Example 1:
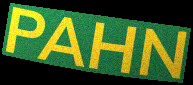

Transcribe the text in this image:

PAHN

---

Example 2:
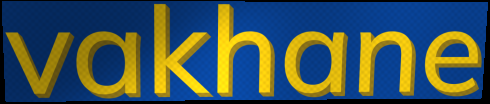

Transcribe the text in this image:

vakhane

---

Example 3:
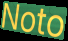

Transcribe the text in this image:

Noto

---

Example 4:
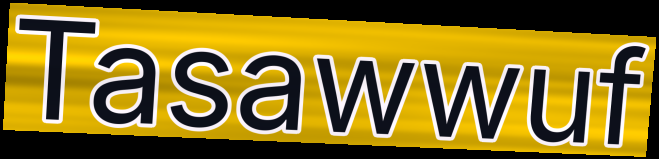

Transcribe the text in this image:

Tasawwuf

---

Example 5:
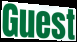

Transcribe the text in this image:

Guest